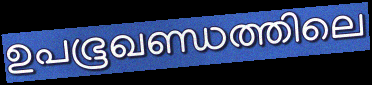
ഉപഭൂഖണ്ഡത്തിലെ